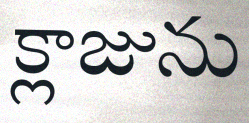
క్లాజును